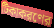
টিকাকরণের